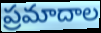
ప్రమాదాల